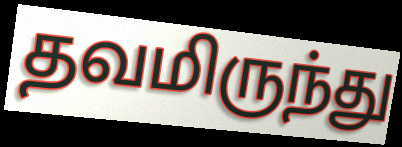
தவமிருந்து